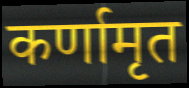
कर्णामृत